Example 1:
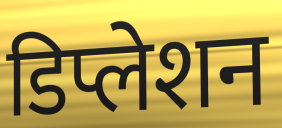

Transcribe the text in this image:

डिप्लेशन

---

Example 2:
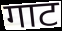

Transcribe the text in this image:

गाट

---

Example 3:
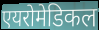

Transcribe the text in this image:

एयरोमेडिकल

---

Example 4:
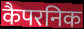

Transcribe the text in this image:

कैपरनिक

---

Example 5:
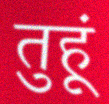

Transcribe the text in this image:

तुहूं